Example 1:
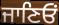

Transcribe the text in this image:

ਜਾਣਿਓਂ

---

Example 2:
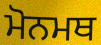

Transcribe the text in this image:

ਮੋਨਮਥ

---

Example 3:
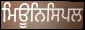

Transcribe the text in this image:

ਮਿਊਨਿਸਿਪਲ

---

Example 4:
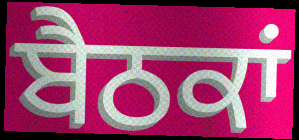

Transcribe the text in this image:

ਬੈਠਕਾਂ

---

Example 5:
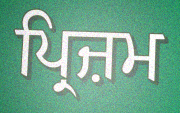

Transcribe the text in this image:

ਪ੍ਰਿਜ਼ਮ